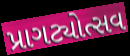
પ્રાગટ્યોત્સવ